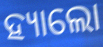
ହ୍ୟାଲୋ